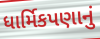
ધાર્મિકપણાનું